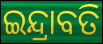
ଇନ୍ଦ୍ରାବତି